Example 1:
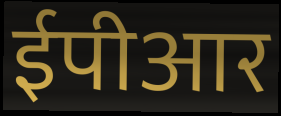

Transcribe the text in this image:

ईपीआर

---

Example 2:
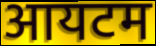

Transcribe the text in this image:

आयटम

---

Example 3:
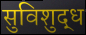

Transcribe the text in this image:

सुविशुद्ध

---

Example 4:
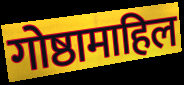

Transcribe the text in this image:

गोष्ठामाहिल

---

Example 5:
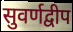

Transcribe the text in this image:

सुवर्णद्वीप